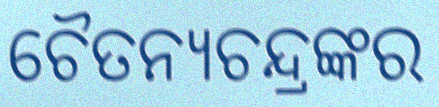
ଚୈତନ୍ୟଚନ୍ଦ୍ରଙ୍କର